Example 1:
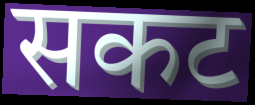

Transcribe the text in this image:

सकट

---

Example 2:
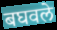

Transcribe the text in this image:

बघवले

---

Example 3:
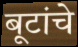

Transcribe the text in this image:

बूटांचे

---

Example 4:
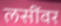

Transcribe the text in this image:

लसींवर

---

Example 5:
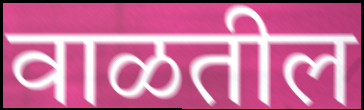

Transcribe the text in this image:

वाळतील